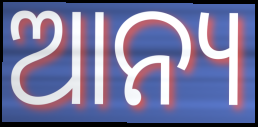
ଆନ୍ୟ